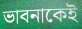
ভাবনাকেই